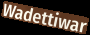
Wadettiwar